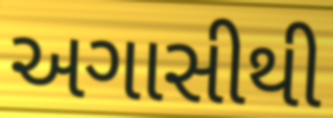
અગાસીથી